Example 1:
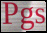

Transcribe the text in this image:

Pgs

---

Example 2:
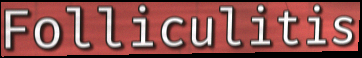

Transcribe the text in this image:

Folliculitis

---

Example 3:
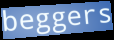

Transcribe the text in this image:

beggers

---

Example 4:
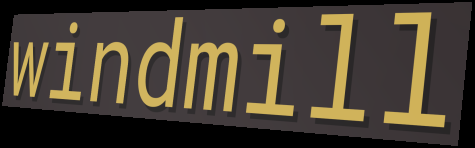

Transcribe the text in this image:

windmill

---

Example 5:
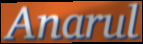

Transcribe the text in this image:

Anarul